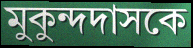
মুকুন্দদাসকে